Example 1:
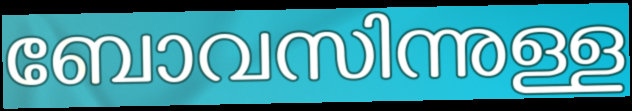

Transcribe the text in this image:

ബോവസിന്നുള്ള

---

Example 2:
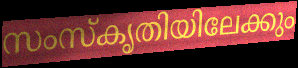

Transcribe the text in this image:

സംസ്കൃതിയിലേക്കും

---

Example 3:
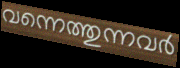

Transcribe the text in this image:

വന്നെത്തുന്നവർ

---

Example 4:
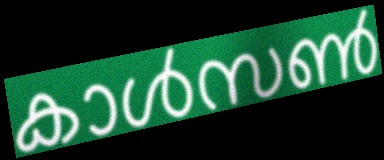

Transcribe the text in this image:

കാൾസൺ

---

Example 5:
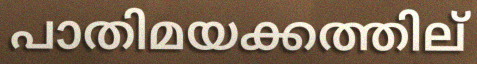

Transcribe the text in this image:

പാതിമയക്കത്തില്